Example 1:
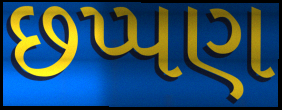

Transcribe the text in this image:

છપ્પણ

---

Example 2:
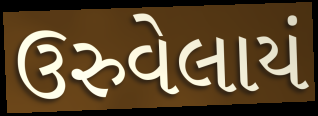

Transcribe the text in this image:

ઉરુવેલાયં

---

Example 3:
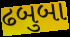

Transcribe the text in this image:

ઢબુબા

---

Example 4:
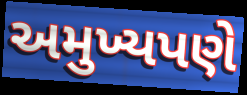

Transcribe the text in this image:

અમુખ્યપણે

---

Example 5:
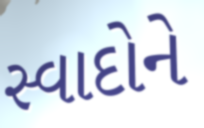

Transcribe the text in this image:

સ્વાદોને